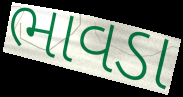
ભાવડા